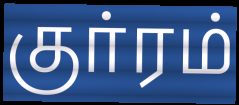
குர்ரம்